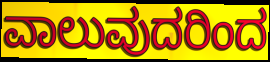
ವಾಲುವುದರಿಂದ